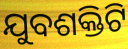
ଯୁବଶକ୍ତିଟି